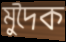
মুদৈক